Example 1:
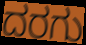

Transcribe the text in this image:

ದರಗು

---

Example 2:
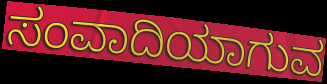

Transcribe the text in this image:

ಸಂವಾದಿಯಾಗುವ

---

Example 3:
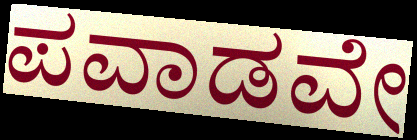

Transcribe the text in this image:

ಪವಾಡವೇ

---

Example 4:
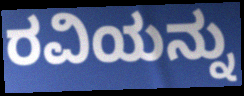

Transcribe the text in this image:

ರವಿಯನ್ನು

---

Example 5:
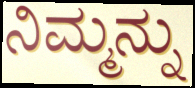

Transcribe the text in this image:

ನಿಮ್ಮನ್ನು